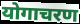
योगाचरण